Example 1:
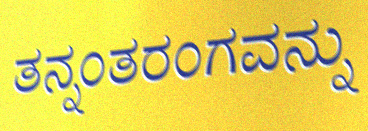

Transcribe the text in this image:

ತನ್ನಂತರಂಗವನ್ನು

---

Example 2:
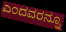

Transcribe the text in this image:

ಎಂದವರನ್ನೂ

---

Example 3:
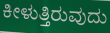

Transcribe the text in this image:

ಕೀಳುತ್ತಿರುವುದು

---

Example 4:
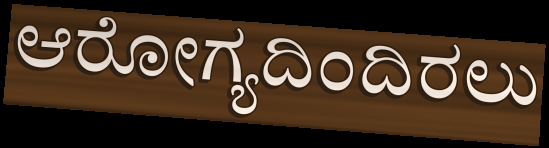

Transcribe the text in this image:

ಆರೋಗ್ಯದಿಂದಿರಲು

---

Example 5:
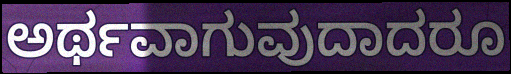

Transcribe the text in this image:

ಅರ್ಥವಾಗುವುದಾದರೂ